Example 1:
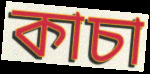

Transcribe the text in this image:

কাচা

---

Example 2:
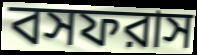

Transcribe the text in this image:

বসফরাস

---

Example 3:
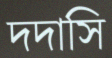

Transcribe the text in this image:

দদাসি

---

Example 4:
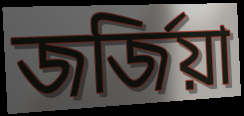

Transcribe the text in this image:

জর্জিয়া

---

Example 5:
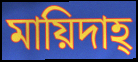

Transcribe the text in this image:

মায়িদাহ্